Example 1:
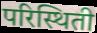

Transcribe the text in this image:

परिस्थिती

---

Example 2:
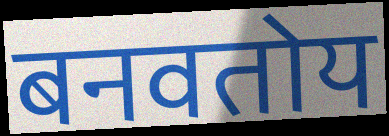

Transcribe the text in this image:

बनवतोय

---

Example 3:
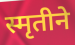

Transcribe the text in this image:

स्मृतीने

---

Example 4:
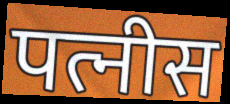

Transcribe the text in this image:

पत्‍नीस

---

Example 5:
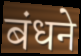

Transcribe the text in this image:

बंधने